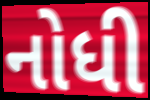
નોધી